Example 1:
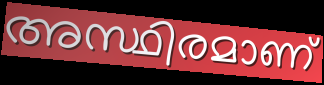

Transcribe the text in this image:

അസ്ഥിരമാണ്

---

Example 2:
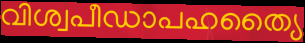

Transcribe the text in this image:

വിശ്വപീഡാപഹത്യൈ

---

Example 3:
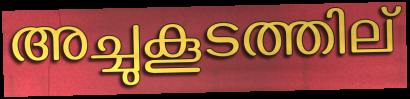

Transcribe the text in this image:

അച്ചുകൂടത്തില്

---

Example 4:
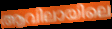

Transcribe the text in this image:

ആവിലായിലെ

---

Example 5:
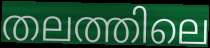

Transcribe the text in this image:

തലത്തിലെ